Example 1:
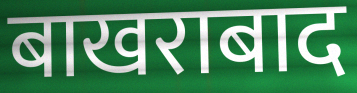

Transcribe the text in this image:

बाखराबाद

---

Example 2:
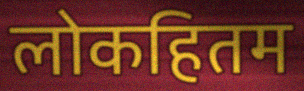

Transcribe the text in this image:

लोकहितम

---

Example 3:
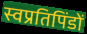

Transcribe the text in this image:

स्वप्रतिपिंडों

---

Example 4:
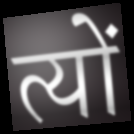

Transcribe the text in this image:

त्यों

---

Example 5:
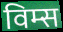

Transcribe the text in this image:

विम्स